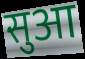
सुआ